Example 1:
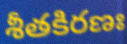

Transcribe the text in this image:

శీతకిరణః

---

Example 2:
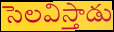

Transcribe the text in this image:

సెలవిస్తాడు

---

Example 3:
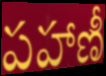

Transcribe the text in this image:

పహాణీ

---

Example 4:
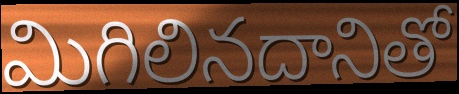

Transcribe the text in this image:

మిగిలినదానితో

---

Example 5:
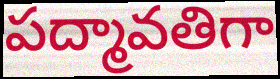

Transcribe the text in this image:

పద్మావతిగా